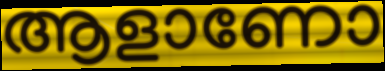
ആളാണോ